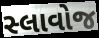
સ્લાવોજ